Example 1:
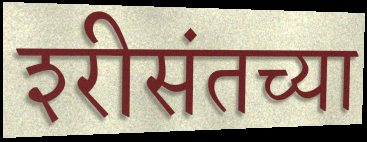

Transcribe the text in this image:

श्रीसंतच्या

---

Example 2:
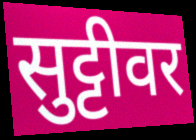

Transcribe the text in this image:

सुट्टीवर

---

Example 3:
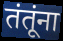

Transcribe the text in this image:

तंतूंना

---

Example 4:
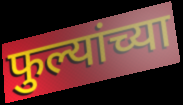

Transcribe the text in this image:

फुल्यांच्या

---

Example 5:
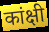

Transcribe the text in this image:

कांक्षी